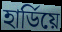
হাৰ্ডিয়ে